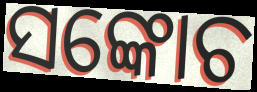
ସଙ୍କୋଚ